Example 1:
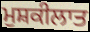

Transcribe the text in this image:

ਮੁਸ਼ਕੀਲਾਤ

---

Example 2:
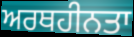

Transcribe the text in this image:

ਅਰਥਹੀਨਤਾ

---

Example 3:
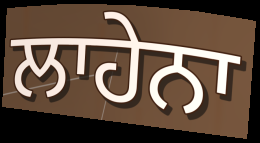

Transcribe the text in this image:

ਲਾਹੇਨਾ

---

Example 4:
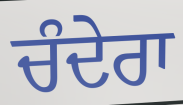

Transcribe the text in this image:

ਚੰਦੇਰਾ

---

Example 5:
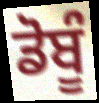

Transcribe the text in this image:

ਡੋਬੂੰ